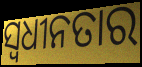
ସ୍ବଧୀନତାର